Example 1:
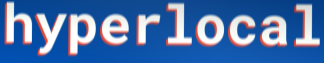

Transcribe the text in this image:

hyperlocal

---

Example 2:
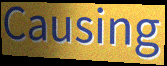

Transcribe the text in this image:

Causing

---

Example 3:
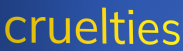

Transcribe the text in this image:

cruelties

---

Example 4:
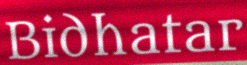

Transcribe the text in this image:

Bidhatar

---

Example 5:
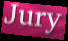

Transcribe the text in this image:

Jury